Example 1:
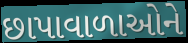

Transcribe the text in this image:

છાપાવાળાઓને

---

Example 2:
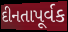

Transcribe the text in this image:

દીનતાપૂર્વક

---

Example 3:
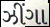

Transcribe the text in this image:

ઝીંગા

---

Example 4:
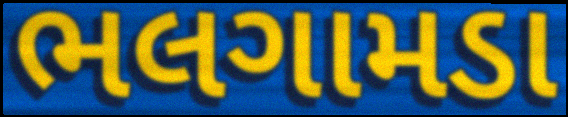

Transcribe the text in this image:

ભલગામડા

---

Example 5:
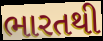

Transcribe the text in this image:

ભારતથી